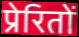
प्रेरितों